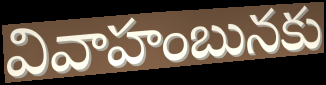
వివాహంబునకు